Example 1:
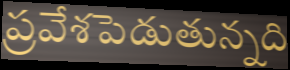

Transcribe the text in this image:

ప్రవేశపెడుతున్నది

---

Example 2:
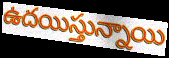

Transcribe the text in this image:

ఉదయిస్తున్నాయి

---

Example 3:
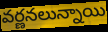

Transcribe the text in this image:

వర్ణనలున్నాయి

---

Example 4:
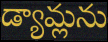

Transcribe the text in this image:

డ్యామ్లను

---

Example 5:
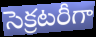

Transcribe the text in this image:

సెక్రటరీగా